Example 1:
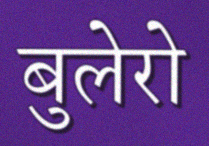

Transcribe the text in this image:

बुलेरो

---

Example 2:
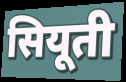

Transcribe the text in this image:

सियूती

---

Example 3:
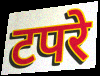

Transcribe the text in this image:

टपरे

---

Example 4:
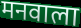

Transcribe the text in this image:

मनवाला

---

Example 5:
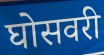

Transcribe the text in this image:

घोसवरी